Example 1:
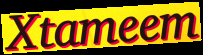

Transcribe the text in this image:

Xtameem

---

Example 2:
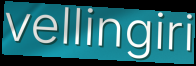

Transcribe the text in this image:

vellingiri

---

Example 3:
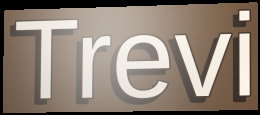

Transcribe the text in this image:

Trevi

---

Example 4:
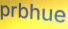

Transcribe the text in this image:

prbhue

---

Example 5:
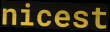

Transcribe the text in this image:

nicest